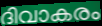
ദിവാകരം